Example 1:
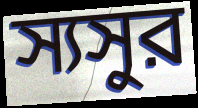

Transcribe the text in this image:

স্যসুর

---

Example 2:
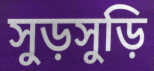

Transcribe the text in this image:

সুড়সুড়ি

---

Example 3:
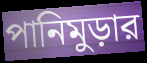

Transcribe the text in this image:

পানিমুড়ার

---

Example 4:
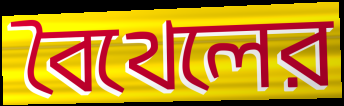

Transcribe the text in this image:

বৈথেলের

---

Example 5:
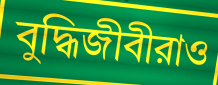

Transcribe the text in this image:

বুদ্ধিজীবীরাও